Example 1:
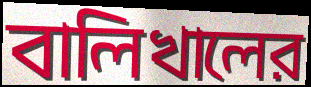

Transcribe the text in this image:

বালিখালের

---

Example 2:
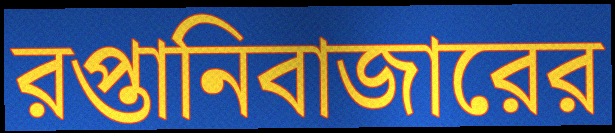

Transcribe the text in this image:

রপ্তানিবাজারের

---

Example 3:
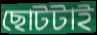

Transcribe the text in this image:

ছোটটাই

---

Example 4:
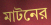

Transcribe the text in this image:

মাটনের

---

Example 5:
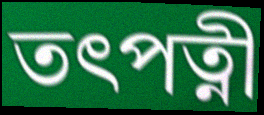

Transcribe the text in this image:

তৎপত্নী